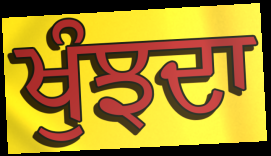
ਖੁੰਝਦਾ